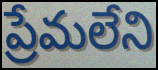
ప్రేమలేని